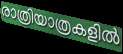
രാത്രിയാത്രകളിൽ